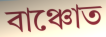
বাঞ্চোত